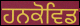
ਹਨਕੋਵਿਡ